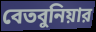
বেতবুনিয়ার